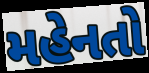
મહેનતો